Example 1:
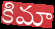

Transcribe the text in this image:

కిమా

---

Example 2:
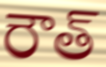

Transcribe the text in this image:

రౌత్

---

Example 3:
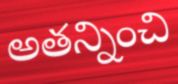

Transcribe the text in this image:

అతన్నించి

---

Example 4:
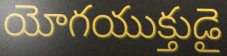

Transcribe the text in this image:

యోగయుక్తుడై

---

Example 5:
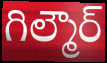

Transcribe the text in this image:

గిల్మౌర్